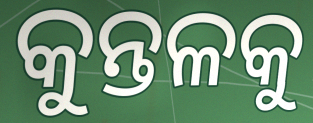
କୁନ୍ତଳକୁ